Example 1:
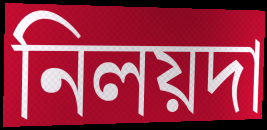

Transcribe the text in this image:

নিলয়দা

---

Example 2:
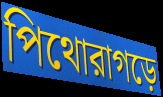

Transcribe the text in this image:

পিথোরাগড়ে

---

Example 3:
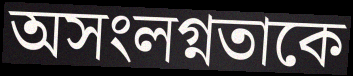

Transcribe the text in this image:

অসংলগ্নতাকে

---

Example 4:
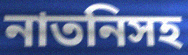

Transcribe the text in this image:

নাতনিসহ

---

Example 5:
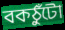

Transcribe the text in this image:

বকঠুঁটো